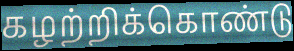
கழற்றிக்கொண்டு